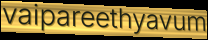
vaipareethyavum